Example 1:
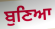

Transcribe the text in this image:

ਬੁਣਿਆ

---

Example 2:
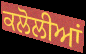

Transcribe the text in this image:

ਕਲੋਲੀਆਂ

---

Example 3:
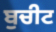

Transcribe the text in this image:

ਬੁਚੀਟ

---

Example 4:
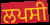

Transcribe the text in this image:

ਲਪਸੀ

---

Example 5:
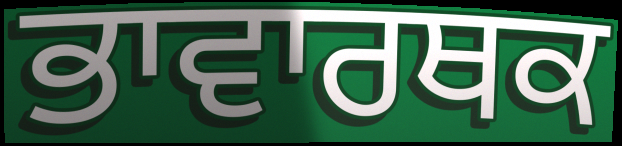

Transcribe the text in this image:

ਭਾਵਾਰਥਕ